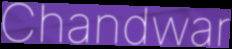
Chandwar